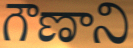
గౌణాని